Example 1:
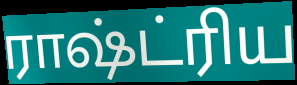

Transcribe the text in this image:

ராஷ்ட்ரிய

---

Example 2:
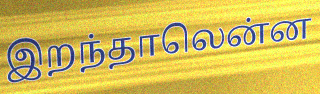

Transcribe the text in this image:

இறந்தாலென்ன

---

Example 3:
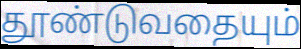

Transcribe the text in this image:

தூண்டுவதையும்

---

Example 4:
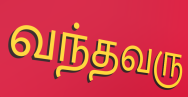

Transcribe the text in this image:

வந்தவரு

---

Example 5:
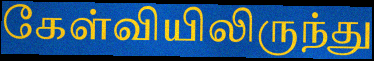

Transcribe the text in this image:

கேள்வியிலிருந்து